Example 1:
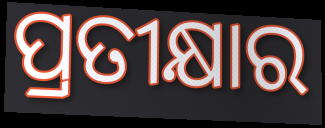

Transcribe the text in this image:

ପ୍ରତୀକ୍ଷାର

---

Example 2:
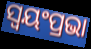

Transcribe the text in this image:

ସ୍ଵୟଂପ୍ରଭା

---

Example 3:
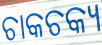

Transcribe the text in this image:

ଚାକଚକ୍ୟ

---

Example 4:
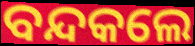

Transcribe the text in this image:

ବନ୍ଦକଲେ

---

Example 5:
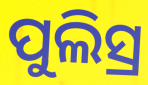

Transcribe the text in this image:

ପୁଲିସ୍ର